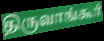
திருவாங்கூர்